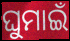
ଘୁମାଇଁ